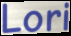
Lori